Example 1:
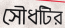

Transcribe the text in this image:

সৌধটির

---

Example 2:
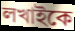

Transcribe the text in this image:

লখাইকে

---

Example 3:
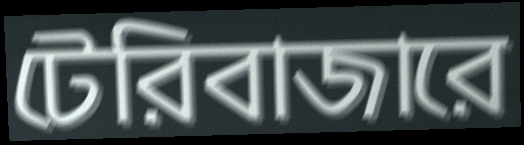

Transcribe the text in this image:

টেরিবাজারে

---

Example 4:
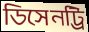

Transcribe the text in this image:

ডিসেনট্রি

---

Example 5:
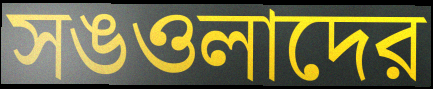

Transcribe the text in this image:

সঙওলাদের